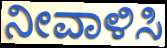
ನೀವಾಳಿಸಿ